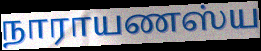
நாராயணஸ்ய